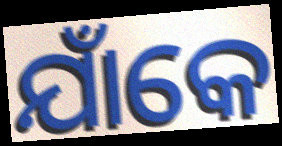
ଯାଁକେ